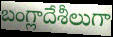
బంగ్లాదేశీలుగా